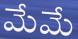
మేమే